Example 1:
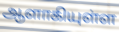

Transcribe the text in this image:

ஆளாகியுள்ள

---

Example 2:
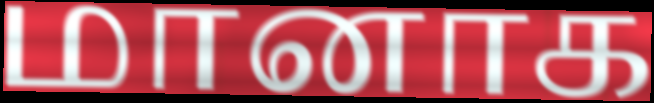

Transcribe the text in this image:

மானாக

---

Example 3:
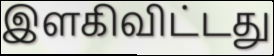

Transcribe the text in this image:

இளகிவிட்டது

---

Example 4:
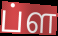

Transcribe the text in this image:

ப்ள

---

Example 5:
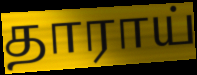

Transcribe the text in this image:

தாராய்